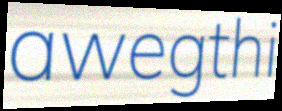
awegthi